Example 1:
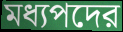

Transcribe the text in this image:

মধ্যপদের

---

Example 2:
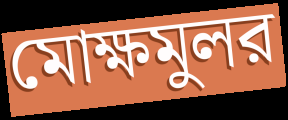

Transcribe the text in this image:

মোক্ষমুলর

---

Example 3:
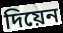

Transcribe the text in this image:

দিয়েন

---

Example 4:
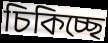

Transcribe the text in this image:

চিকিচ্ছে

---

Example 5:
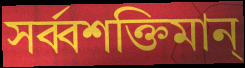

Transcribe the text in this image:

সর্ব্বশক্তিমান্